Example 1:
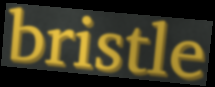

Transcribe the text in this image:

bristle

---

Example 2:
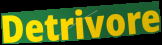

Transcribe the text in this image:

Detrivore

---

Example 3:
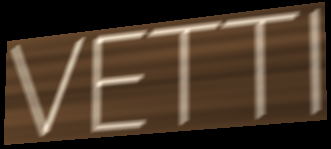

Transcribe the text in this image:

VETTI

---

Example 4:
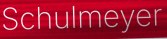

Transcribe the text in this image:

Schulmeyer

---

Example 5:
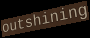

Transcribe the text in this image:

outshining